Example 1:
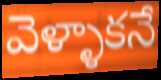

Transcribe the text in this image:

వెళ్ళాకనే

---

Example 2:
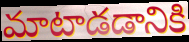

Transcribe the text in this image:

మాటాడడానికి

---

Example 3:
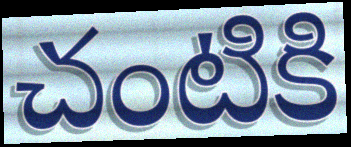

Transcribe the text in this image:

చంటికి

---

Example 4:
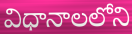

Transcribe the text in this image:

విధానాలలోని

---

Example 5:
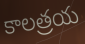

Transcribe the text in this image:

కాలత్రయ